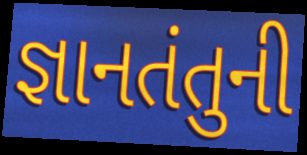
જ્ઞાનતંતુની